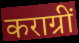
कराग्रीं